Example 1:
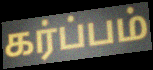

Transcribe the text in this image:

கர்ப்பம்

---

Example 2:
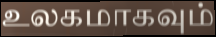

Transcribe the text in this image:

உலகமாகவும்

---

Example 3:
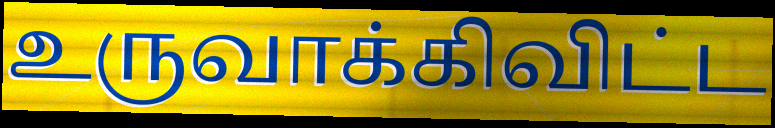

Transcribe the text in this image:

உருவாக்கிவிட்ட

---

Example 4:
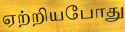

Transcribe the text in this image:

ஏற்றியபோது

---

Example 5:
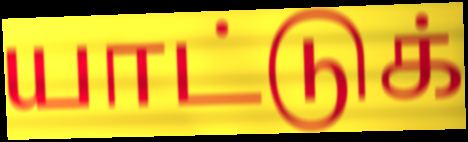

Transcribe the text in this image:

யாட்டுக்